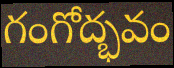
గంగోద్భవం